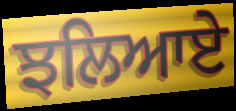
ਝਲਿਆਏ